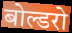
बोल्डरो